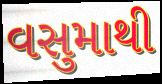
વસુમાથી